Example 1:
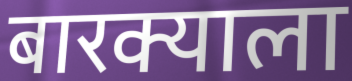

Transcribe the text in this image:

बारक्याला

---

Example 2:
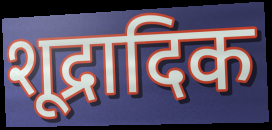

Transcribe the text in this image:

शूद्रादिक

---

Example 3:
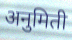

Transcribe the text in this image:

अनुमिती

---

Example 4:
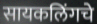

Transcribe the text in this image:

सायकलिंगचे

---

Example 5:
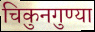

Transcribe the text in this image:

चिकुनगुण्या